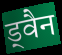
ड्वैन